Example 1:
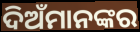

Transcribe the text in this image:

ଦିଅଁମାନଙ୍କର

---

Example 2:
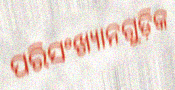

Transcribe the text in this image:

ପରିସଂଖ୍ୟାନଗୁଡ଼ିକ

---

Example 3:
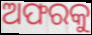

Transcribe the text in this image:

ଅଫରକୁ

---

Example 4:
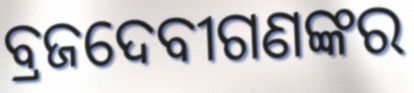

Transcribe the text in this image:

ବ୍ରଜଦେବୀଗଣଙ୍କର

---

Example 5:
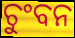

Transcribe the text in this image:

ଚୁଂବନ